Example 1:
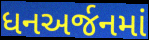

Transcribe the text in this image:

ધનઅર્જનમાં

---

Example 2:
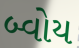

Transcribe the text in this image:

બ્વોય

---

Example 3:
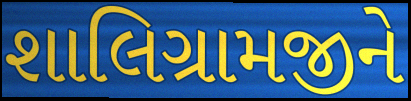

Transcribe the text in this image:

શાલિગ્રામજીને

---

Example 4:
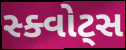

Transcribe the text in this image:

સ્ક્વોટ્સ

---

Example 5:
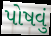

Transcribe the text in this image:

પોષવું